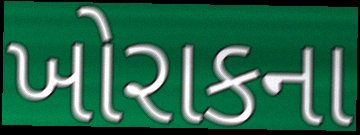
ખોરાકના